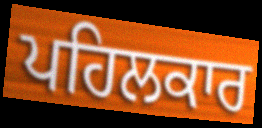
ਪਹਿਲਕਾਰ